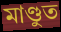
মাণ্ডুত